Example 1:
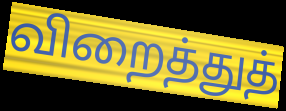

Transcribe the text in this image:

விறைத்துத்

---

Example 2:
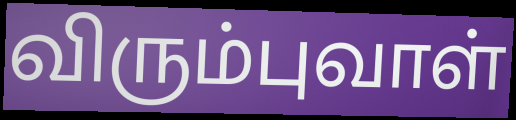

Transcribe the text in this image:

விரும்புவாள்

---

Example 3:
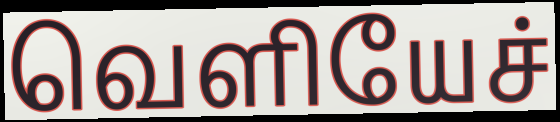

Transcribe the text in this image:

வெளியேச்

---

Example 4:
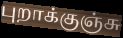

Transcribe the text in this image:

புறாக்குஞ்சு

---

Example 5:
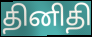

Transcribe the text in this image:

தினிதி